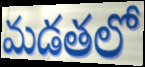
మడతలో